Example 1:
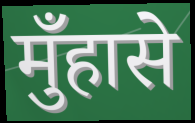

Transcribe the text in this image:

मुँहासे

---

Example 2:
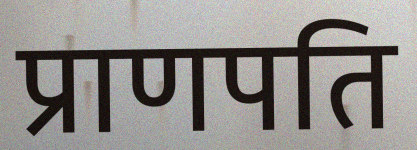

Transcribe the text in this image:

प्राणपति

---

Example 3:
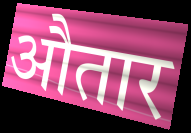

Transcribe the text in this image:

औतार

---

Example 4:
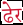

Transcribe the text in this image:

ढेर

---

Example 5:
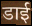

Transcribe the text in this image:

डाई